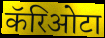
कॅरिओटा